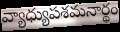
వ్యాధ్యుపశమనార్థం